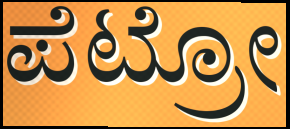
ಪೆಟ್ರೋ